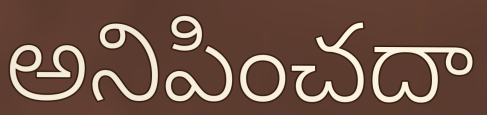
అనిపించదా